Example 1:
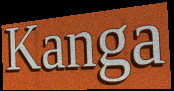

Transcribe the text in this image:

Kanga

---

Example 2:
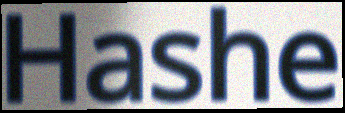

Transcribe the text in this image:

Hashe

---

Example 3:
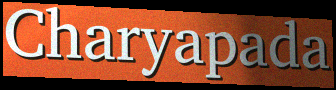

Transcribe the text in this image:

Charyapada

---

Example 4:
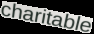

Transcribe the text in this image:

charitable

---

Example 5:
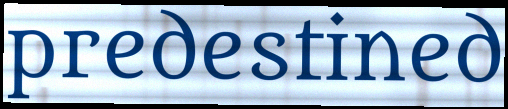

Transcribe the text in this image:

predestined